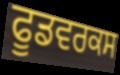
ਫੂਡਵਰਕਸ